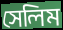
সেলিম